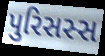
પુરિસસ્સ